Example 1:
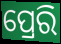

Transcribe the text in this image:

ପ୍ରେରି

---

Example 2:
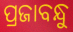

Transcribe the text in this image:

ପ୍ରଜାବନ୍ଧୁ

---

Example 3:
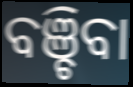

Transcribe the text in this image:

ବଞ୍ଚିବା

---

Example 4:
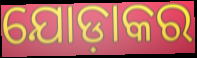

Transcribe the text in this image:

ଯୋଡ଼ାକର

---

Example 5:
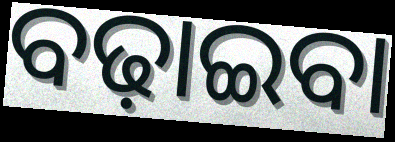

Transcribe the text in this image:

ବଢ଼ାଇବା